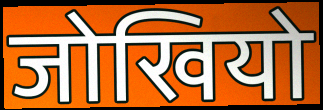
जोखियो